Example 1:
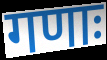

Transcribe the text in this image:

गणाः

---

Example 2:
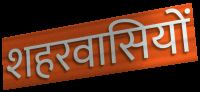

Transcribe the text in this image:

शहरवासियों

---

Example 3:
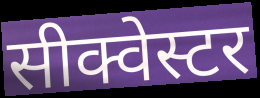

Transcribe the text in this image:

सीक्वेस्टर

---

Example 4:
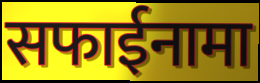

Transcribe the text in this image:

सफाईनामा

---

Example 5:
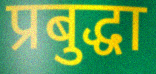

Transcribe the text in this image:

प्रबुद्धा